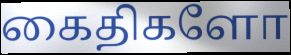
கைதிகளோ